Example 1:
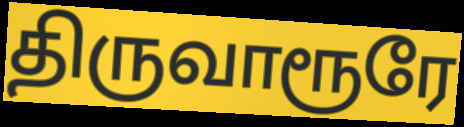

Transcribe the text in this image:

திருவாரூரே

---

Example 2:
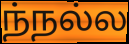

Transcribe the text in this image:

ந்நல்ல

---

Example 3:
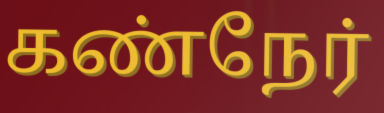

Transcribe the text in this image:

கண்நேர்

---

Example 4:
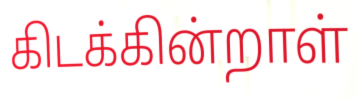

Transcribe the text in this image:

கிடக்கின்றாள்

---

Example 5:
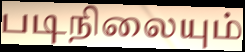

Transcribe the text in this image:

படிநிலையும்